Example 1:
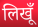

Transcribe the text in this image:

लिखूँ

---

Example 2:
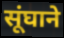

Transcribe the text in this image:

सूंघाने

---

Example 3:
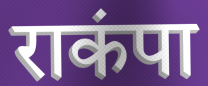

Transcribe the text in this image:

राकंपा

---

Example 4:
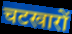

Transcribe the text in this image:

चटखारों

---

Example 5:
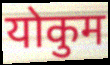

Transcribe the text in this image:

योकुम